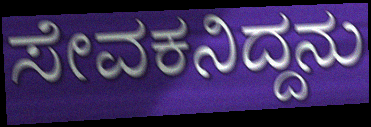
ಸೇವಕನಿದ್ದನು